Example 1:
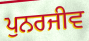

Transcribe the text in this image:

ਪੁਨਰਜੀਵ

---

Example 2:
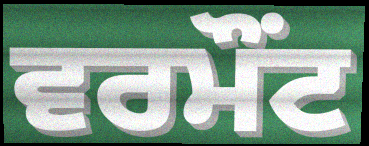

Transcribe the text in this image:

ਵਰਮੌਂਟ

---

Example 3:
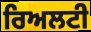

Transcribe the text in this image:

ਰਿਅਲਟੀ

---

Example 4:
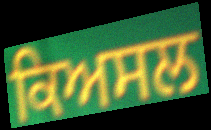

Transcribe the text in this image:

ਕਿਅਸਲ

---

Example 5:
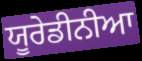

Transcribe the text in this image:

ਯੂਰੇਡੀਨੀਆ